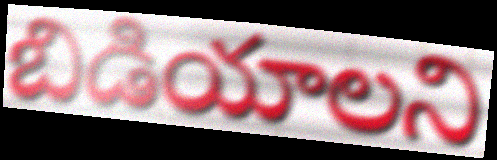
బిడియాలని